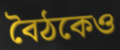
বৈঠকেও